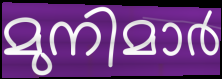
മുനിമാർ